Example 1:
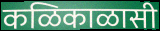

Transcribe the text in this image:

कळिकाळासी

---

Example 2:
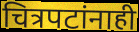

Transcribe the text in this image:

चित्रपटांनाही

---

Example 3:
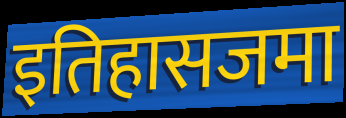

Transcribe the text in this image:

इतिहासजमा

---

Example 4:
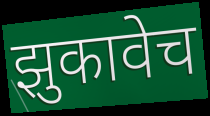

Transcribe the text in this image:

झुकावेच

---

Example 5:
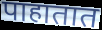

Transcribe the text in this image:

पाहातात